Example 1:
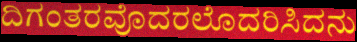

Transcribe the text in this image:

ದಿಗಂತರವೊದರಲೊದರಿಸಿದನು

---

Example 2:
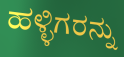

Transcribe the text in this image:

ಹಳ್ಳಿಗರನ್ನು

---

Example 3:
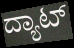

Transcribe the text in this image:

ದ್ಯಾಟ್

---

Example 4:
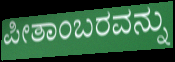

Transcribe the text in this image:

ಪೀತಾಂಬರವನ್ನು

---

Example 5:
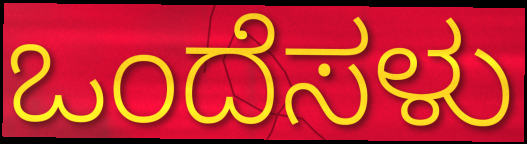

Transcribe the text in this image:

ಒಂದೆಸಳು